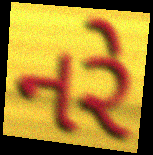
નરે